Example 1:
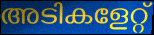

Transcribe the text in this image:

അടികളേറ്റ്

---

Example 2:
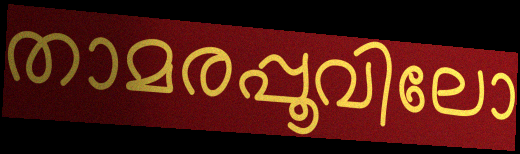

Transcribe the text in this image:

താമരപ്പൂവിലോ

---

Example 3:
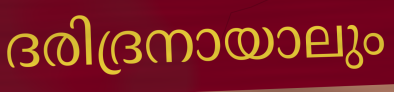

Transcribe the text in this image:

ദരിദ്രനായാലും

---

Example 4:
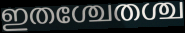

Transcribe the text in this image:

ഇതശ്ചേതശ്ച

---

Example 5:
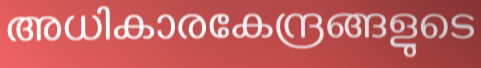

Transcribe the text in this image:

അധികാരകേന്ദ്രങ്ങളുടെ